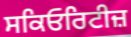
ਸਕਿਓਰਿਟੀਜ਼